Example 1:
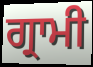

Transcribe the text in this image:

ਗ੍ਰਾਮੀ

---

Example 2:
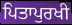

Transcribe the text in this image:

ਪਿਤਾਪੁਰਖੀ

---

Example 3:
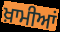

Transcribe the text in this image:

ਖ਼ਾਮੀਆਂ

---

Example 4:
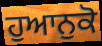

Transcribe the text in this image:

ਹੁਆਨੁਕੋ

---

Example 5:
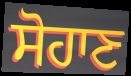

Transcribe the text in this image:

ਸੋਹਾਣ